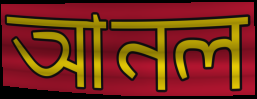
আনল